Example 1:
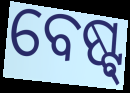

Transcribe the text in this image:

ବେଷ୍ଟ୍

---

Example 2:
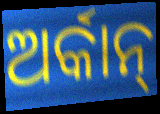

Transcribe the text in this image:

ଅର୍କାନ୍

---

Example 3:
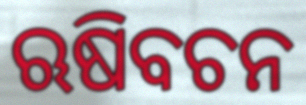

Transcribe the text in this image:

ଋଷିବଚନ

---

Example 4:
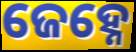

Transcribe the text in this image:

ଜେହ୍ନେ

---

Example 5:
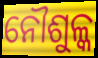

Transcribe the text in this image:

ନୌଶୁଳ୍କ